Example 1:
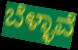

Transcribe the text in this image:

ಬೆಳ್ಳಾವೆ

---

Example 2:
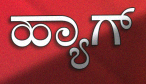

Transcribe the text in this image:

ಹ್ಯಾಗ್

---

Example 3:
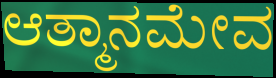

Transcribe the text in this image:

ಆತ್ಮಾನಮೇವ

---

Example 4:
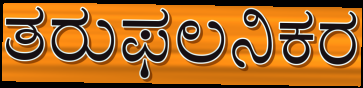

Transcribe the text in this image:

ತರುಫಲನಿಕರ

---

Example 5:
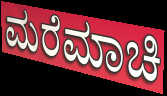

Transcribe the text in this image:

ಮರೆಮಾಚಿ